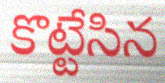
కొట్టేసిన